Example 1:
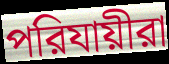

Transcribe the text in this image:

পরিযায়ীরা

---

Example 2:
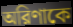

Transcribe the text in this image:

অরিণাকে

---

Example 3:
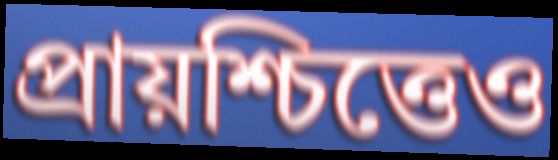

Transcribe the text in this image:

প্রায়শ্চিত্তেও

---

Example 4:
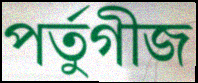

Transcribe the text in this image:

পর্তুগীজ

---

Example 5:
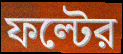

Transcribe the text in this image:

ফল্টের